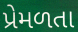
પ્રેમળતા